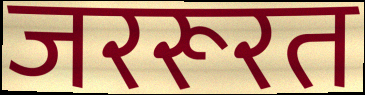
जररूरत